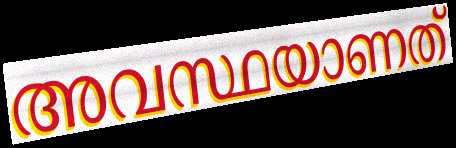
അവസ്ഥയാണത്